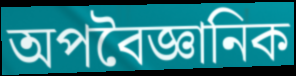
অপবৈজ্ঞানিক